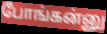
போங்கன்னு